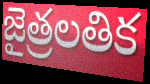
జైత్రలతిక